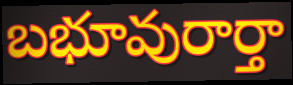
బభూవురార్తా